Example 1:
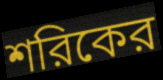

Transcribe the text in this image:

শরিকের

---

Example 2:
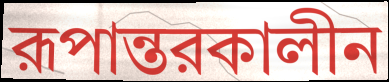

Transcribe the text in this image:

রূপান্তরকালীন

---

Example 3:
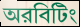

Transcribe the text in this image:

অরবিটিং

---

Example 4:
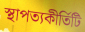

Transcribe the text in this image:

স্থাপত্যকীর্তিটি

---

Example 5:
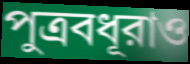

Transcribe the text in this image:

পুত্রবধূরাও